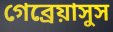
গেব্রেয়াসুস